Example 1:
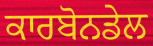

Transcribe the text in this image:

ਕਾਰਬੋਨਡੇਲ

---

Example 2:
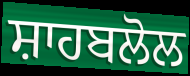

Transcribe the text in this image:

ਸ਼ਾਹਬਲੋਲ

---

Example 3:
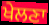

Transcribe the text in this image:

ਖੇਲਣਾ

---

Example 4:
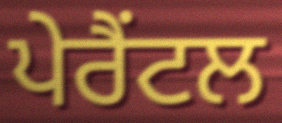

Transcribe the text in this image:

ਪੇਰੈਂਟਲ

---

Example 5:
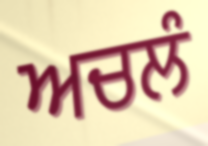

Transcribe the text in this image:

ਅਚਲੰ